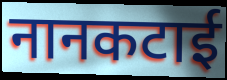
नानकटाई